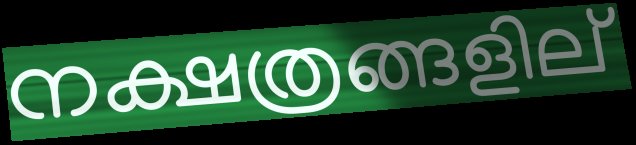
നക്ഷത്രങ്ങളില്